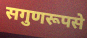
सगुणरूपसे